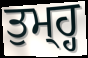
ਤੁਮ੍ਹ੍ਹ